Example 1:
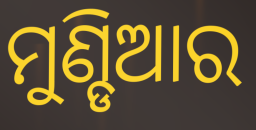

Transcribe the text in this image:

ମୁଣ୍ଡିଆର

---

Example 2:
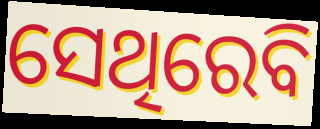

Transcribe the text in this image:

ସେଥିରେବି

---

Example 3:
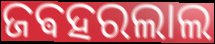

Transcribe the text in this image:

ଜଵହରଲାଲ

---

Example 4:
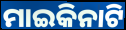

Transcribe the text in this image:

ମାଇକିନାଟି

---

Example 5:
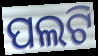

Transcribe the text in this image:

ପଲଟି